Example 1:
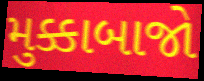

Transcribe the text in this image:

મુક્કાબાજો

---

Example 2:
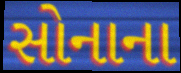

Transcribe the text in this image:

સોનાના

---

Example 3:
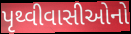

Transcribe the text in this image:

પૃથ્વીવાસીઓનો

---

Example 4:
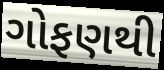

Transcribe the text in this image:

ગોફણથી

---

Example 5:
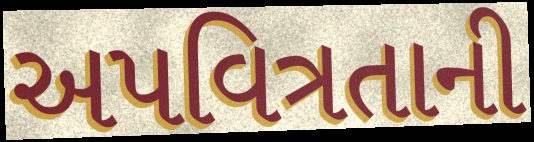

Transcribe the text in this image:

અપવિત્રતાની